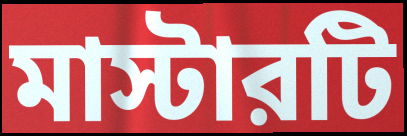
মাস্টারটি